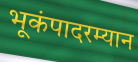
भूकंपादरम्यान